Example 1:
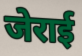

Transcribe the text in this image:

जेराई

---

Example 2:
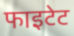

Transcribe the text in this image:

फाइटेट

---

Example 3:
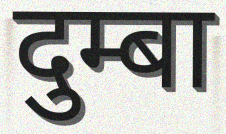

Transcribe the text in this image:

दुम्बा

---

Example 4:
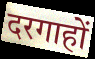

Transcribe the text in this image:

दरगाहों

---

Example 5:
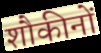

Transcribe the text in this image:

शौकीनों